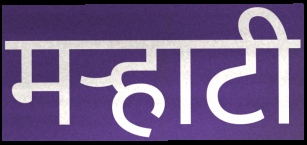
मर्‍हाटी